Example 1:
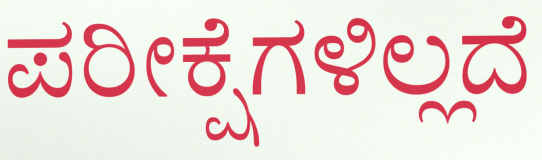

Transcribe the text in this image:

ಪರೀಕ್ಷೆಗಳಿಲ್ಲದೆ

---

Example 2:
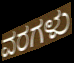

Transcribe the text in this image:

ವರಗಳು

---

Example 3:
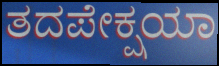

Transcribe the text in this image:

ತದಪೇಕ್ಷಯಾ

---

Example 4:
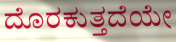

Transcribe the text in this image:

ದೊರಕುತ್ತದೆಯೇ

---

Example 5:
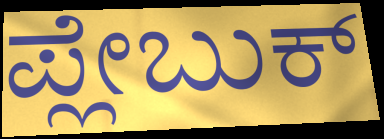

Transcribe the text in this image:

ಪ್ಲೇಬುಕ್